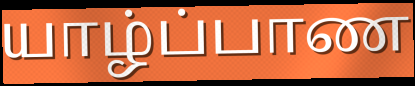
யாழ்ப்பாண